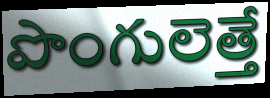
పొంగులెత్తే